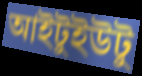
আইটুইউটু